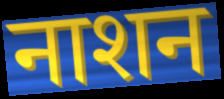
नाशन